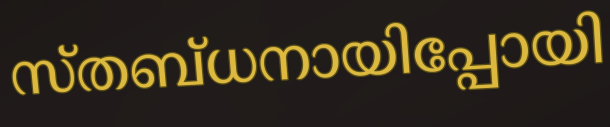
സ്തബ്ധനായിപ്പോയി